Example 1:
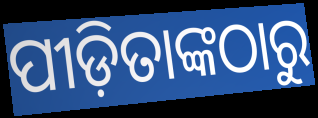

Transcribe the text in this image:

ପୀଡ଼ିତାଙ୍କଠାରୁ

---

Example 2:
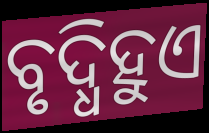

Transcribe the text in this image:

ବୃଦ୍ଧିହୁଏ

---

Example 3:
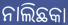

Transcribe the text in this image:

ନାଲିଛକା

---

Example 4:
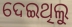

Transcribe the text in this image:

ଦେଇଥିଲୁ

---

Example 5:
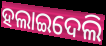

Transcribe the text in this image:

ହଲାଇଦେଲି